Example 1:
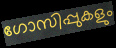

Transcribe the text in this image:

ഗോസിപ്പുകളും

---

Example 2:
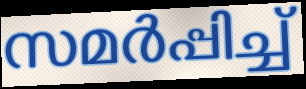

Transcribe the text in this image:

സമർപ്പിച്ച്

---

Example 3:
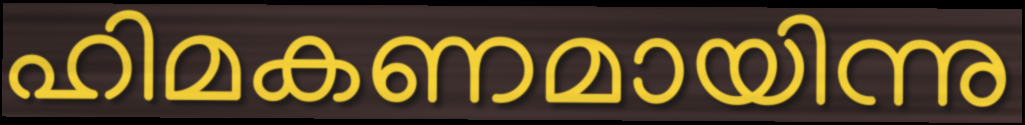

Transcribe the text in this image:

ഹിമകണമായിന്നു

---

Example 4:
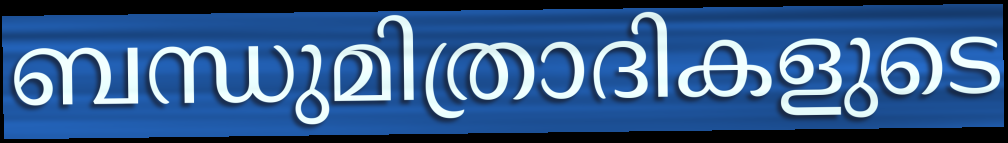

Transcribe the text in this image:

ബന്ധുമിത്രാദികളുടെ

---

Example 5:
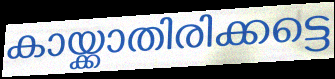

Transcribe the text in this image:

കായ്ക്കാതിരിക്കട്ടെ